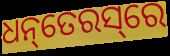
ଧନ୍‌ତେରସ୍‌ରେ